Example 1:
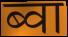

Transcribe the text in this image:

ब्वा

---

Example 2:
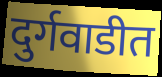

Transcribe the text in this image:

दुर्गवाडीत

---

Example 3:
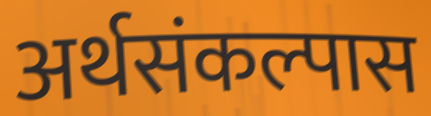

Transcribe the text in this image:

अर्थसंकल्पास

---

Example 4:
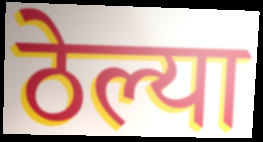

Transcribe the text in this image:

ठेल्या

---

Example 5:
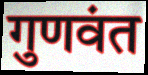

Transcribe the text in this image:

गुणवंत